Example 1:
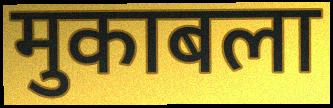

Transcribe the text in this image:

मुकाबला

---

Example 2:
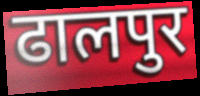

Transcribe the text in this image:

ढालपुर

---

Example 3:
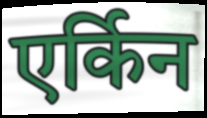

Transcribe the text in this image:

एर्किन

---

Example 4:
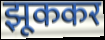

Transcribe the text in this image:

झूककर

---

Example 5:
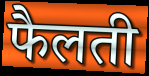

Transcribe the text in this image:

फैलती